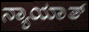
ನ್ಯಾಯಾತ್